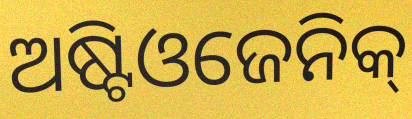
ଅଷ୍ଟିଓଜେନିକ୍